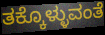
ತಕ್ಕೊಳ್ಳುವಂತೆ